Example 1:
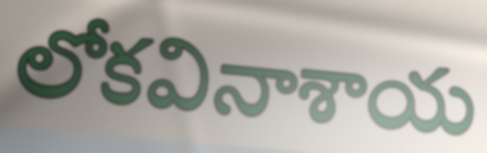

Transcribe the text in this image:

లోకవినాశాయ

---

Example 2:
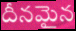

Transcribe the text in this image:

దీనమైన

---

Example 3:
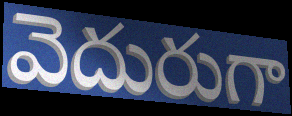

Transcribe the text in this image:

వెదురుగా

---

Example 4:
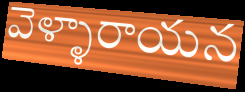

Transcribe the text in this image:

వెళ్ళారాయన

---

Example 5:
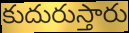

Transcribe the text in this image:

కుదురుస్తారు